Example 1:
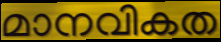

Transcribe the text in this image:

മാനവികത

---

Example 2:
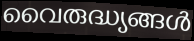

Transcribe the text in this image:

വൈരുദ്ധ്യങ്ങൾ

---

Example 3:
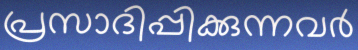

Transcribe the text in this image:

പ്രസാദിപ്പിക്കുന്നവർ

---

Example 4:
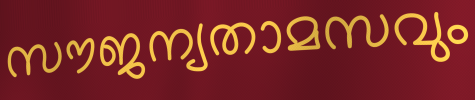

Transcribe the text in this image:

സൗജന്യതാമസവും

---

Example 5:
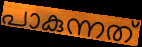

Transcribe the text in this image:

പാകുന്നത്